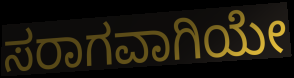
ಸರಾಗವಾಗಿಯೇ